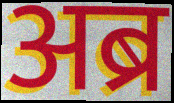
अब्र